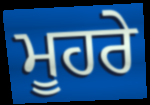
ਮੂਹਰੇ